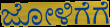
ಜೋಳಿಗೆಗೆ